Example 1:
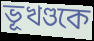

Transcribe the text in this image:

ভূখণ্ডকে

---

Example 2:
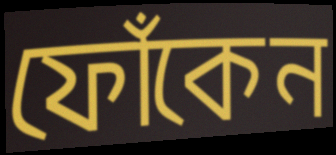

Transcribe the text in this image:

ফোঁকেন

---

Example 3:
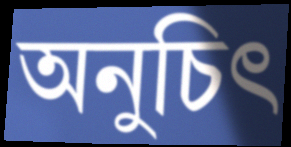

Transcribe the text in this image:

অনুচিৎ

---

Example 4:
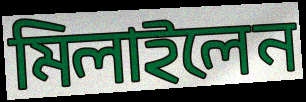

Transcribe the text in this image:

মিলাইলেন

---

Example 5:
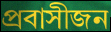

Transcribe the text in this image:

প্রবাসীজন